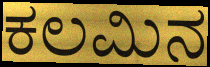
ಕಲಮಿನ